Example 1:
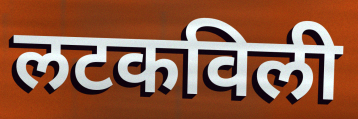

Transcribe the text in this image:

लटकविली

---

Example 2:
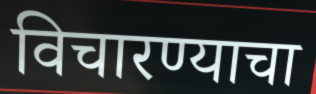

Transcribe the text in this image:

विचारण्याचा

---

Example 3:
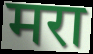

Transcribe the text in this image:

मरा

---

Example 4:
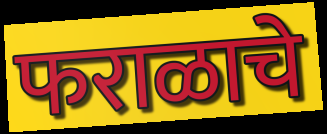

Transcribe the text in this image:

फराळाचे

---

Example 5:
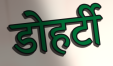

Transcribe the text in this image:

डोहर्टी